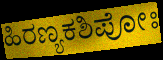
ಹಿರಣ್ಯಕಶಿಪೋಃ